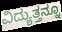
ವಿದ್ಯುತ್ತನ್ನೂ